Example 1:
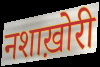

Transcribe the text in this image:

नशाख़ोरी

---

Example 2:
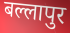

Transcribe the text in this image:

बल्लापुर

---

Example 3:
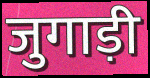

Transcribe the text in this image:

जुगाड़ी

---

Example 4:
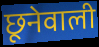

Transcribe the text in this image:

छूनेवाली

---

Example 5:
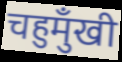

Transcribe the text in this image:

चहुमुँखी